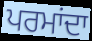
ਪਰਮਾਂਦਾ